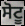
ਸੋਟੂ